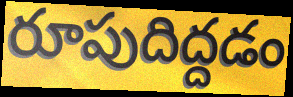
రూపుదిద్దడం